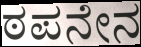
ಠಪನೇನ